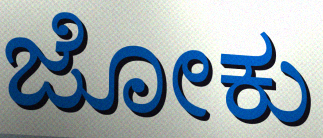
ಜೋಕು